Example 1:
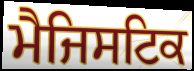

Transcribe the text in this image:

ਮੈਜਿਸਟਿਕ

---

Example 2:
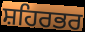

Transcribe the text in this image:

ਸ਼ਹਿਰਭਰ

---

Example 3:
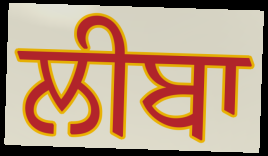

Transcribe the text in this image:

ਲੀਬਾ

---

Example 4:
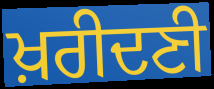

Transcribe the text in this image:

ਖ਼ਰੀਦਣੀ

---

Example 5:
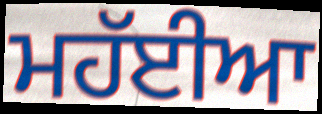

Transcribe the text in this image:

ਮਹੱਈਆ